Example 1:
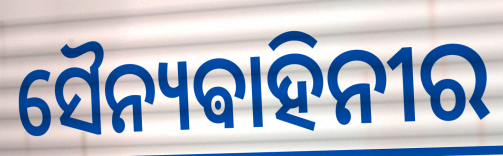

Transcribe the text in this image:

ସୈନ୍ୟଵାହିନୀର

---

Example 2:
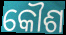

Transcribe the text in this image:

କୌଶ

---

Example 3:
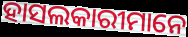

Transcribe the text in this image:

ହାସଲକାରୀମାନେ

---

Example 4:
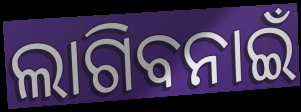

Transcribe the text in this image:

ଲାଗିବନାଇଁ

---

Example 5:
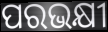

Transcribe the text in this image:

ପରଭକ୍ଷୀ